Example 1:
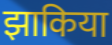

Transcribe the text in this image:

झाकिया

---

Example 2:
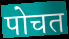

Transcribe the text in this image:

पोचत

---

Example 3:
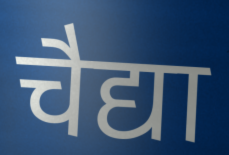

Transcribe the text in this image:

चैद्या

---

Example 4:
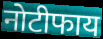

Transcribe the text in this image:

नोटीफाय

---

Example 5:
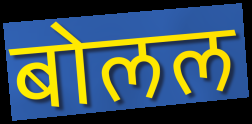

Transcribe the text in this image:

बोलल